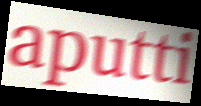
aputti